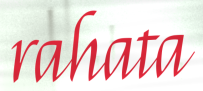
rahata